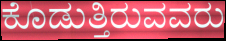
ಕೊಡುತ್ತಿರುವವರು